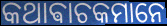
କଥାଵାଚକମାନେ